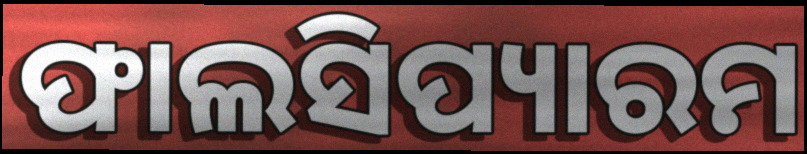
ଫାଲସିପ୍ୟାରମ